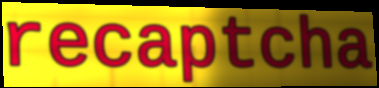
recaptcha